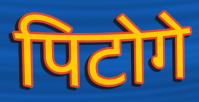
पिटोगे